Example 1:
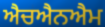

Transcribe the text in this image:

ਐਚਐਨਐਮ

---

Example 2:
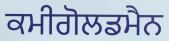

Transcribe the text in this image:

ਕਮੀਗੋਲਡਮੈਨ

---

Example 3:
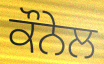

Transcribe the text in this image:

ਕੌਨੇਲ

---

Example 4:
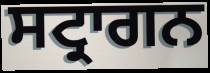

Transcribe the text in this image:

ਸਟ੍ਰਾਗਨ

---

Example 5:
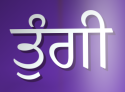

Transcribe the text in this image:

ਤੁੰਗੀ